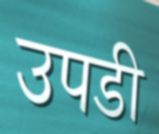
उपडी